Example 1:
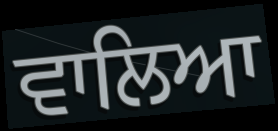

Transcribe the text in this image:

ਵਾਲਿਆ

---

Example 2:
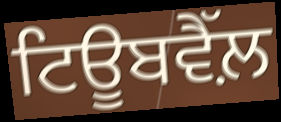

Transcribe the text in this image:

ਟਿਊਬਵੈੱਲ਼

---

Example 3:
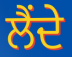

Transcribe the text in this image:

ਲੈਂਦੇ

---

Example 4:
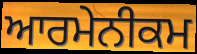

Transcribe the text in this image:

ਆਰਮੇਨੀਕਮ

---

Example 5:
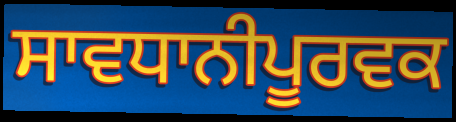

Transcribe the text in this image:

ਸਾਵਧਾਨੀਪੂਰਵਕ